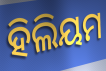
ହିଲିୟମ